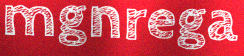
mgnrega